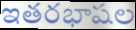
ఇతరభాషల